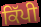
ਕਿੱਪੀ